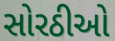
સોરઠીઓ